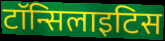
टॉन्सिलाइटिस